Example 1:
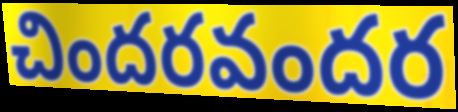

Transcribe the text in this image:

చిందరవందర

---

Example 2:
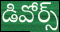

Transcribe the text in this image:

డివోర్స్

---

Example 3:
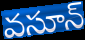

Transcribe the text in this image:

వసూన్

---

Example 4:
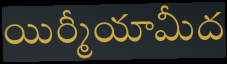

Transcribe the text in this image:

యిర్మీయామీద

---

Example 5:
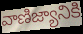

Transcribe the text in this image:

వాణిజ్యానికి